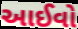
આઈવો